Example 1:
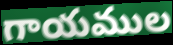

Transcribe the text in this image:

గాయముల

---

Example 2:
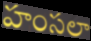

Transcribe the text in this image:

హంసలా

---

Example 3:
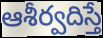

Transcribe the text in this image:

ఆశీర్వదిస్తే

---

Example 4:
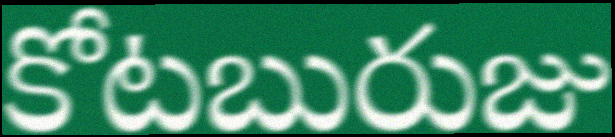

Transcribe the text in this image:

కోటబురుజు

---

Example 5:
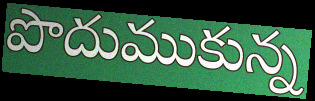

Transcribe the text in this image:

పొదుముకున్న